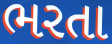
ભરતા